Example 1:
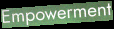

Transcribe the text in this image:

Empowerment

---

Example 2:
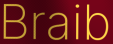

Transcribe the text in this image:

Braib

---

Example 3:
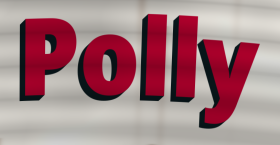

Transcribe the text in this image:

Polly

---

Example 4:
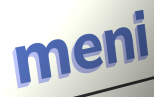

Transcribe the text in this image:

meni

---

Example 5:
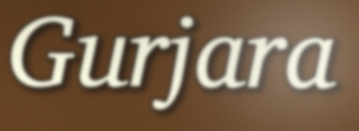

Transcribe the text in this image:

Gurjara